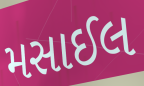
મસાઈલ